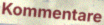
Kommentare